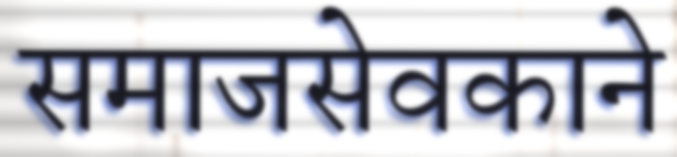
समाजसेवकाने